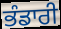
ਭੰਡਾਰੀ